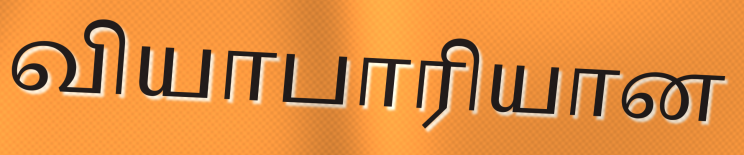
வியாபாரியான